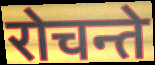
रोचन्ते